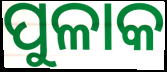
ପୁଳାକ